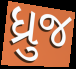
ધ્રુજ